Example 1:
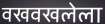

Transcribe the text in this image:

वखवखलेला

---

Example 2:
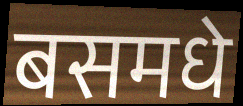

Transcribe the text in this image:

बसमधे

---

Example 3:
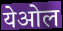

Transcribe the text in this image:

येओल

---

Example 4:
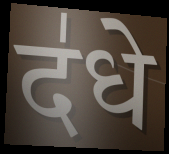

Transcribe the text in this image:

द॑धे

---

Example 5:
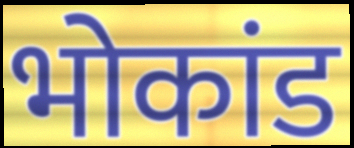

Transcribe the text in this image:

भोकांड